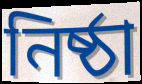
নিষ্ঠা